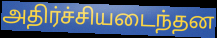
அதிர்ச்சியடைந்தன